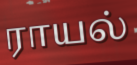
ராயல்